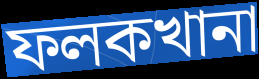
ফলকখানা